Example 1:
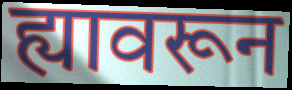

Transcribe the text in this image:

ह्यावरून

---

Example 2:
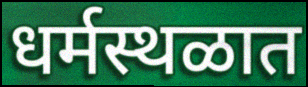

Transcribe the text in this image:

धर्मस्थळात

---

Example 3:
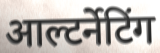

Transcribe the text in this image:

आल्टर्नेटिंग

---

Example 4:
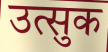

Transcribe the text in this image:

उत्सुक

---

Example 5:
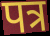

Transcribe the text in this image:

पत्र